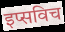
इप्सविच